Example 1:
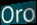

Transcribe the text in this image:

Oro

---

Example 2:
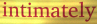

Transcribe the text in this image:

intimately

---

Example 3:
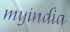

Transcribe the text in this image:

myindia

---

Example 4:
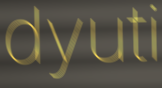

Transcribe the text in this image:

dyuti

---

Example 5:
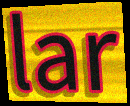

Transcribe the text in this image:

lar